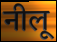
नीलू